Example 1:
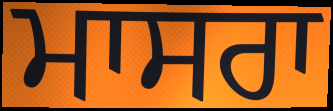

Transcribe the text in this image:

ਮਾਸਰਾ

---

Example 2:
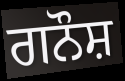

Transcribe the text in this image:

ਗਨੌਸ਼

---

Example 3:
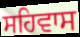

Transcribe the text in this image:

ਸਹਿਵਾਸ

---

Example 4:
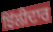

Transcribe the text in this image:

ਝਿੱਲੀਦਾਰ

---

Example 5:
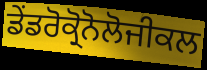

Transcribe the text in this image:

ਡੇਂਡਰੋਕ੍ਰੋਨੋਲੋਜੀਕਲ